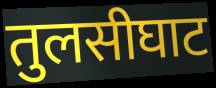
तुलसीघाट